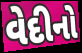
વેદીનો